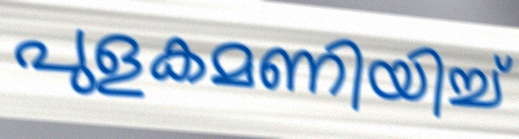
പുളകമണിയിച്ച്